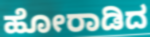
ಹೋರಾಡಿದ